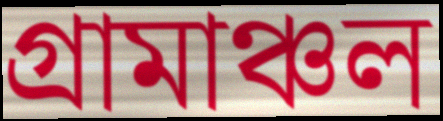
গ্রামাঞ্চল